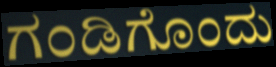
ಗಂಡಿಗೊಂದು